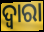
ଦ୍ବାରା